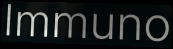
Immuno